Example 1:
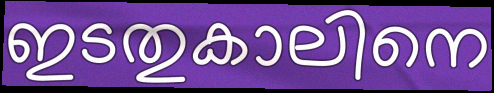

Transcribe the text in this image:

ഇടതുകാലിനെ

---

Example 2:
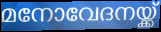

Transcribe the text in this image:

മനോവേദനയ്ക്ക്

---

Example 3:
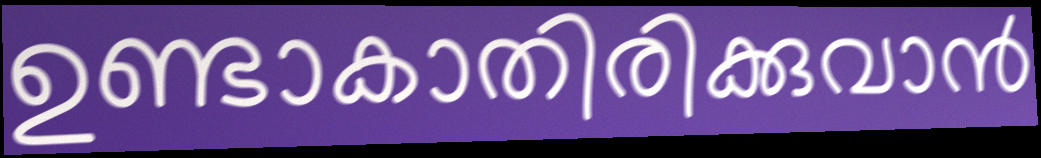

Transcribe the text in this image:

ഉണ്ടാകാതിരിക്കുവാൻ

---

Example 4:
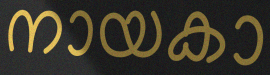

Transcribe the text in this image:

നായകാ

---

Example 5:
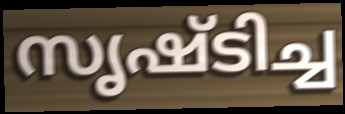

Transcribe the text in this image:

സൃഷ്ടിച്ച